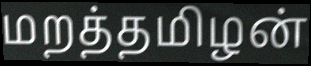
மறத்தமிழன்